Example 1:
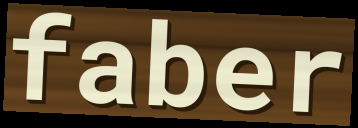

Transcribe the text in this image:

faber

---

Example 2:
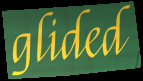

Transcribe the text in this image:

glided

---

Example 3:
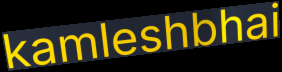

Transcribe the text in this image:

kamleshbhai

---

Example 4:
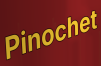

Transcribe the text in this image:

Pinochet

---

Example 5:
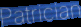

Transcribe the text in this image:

Patrician